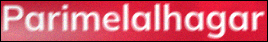
Parimelalhagar